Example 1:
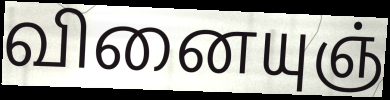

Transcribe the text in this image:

வினையுஞ்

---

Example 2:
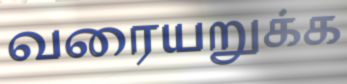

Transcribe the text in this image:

வரையறுக்க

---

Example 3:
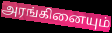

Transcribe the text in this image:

அரங்கினையும்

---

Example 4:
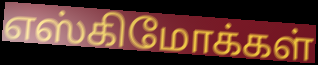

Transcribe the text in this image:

எஸ்கிமோக்கள்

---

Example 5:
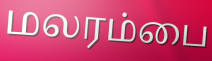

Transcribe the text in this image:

மலரம்பை